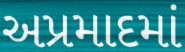
અપ્રમાદમાં